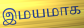
இமயமாக